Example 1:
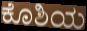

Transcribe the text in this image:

ಕೊಶಿಯ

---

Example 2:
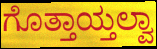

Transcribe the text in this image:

ಗೊತ್ತಾಯ್ತಲ್ವಾ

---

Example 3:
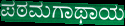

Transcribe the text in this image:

ಪಠಮಗಾಥಾಯ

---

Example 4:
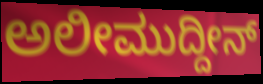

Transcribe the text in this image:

ಅಲೀಮುದ್ದೀನ್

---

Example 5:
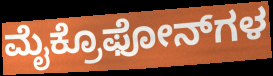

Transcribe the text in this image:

ಮೈಕ್ರೊಫೋನ್‌ಗಳ